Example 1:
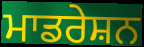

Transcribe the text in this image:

ਮਾਡਰੇਸ਼ਨ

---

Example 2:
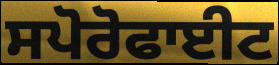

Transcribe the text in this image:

ਸਪੋਰੋਫਾਈਟ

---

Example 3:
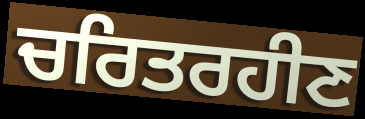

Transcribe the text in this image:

ਚਰਿਤਰਹੀਣ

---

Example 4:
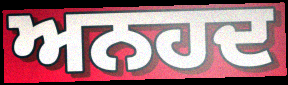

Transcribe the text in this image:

ਅਨਹਦ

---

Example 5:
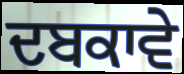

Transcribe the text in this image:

ਦਬਕਾਵੇ